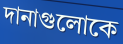
দানাগুলোকে